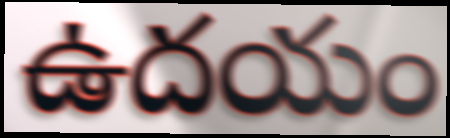
ఉదయం